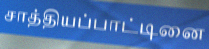
சாத்தியப்பாட்டினை